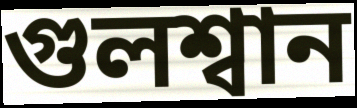
গুলশ্বান